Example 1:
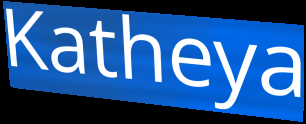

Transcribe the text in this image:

Katheya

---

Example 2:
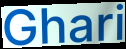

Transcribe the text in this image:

Ghari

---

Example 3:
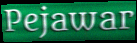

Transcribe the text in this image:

Pejawar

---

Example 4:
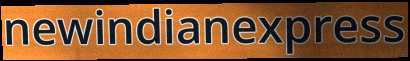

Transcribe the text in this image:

newindianexpress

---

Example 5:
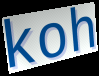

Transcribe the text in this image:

koh